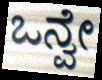
ಒನ್ವೇ